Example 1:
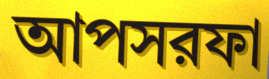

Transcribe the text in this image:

আপসরফা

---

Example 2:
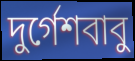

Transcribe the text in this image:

দুর্গেশবাবু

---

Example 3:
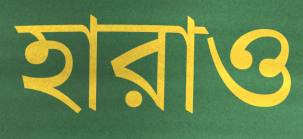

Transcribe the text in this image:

হারাও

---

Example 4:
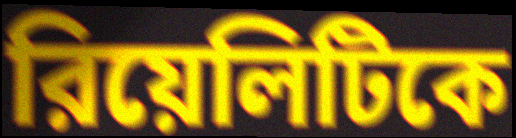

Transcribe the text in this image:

রিয়েলিটিকে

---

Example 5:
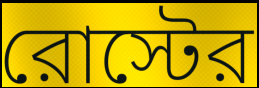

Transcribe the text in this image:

রোস্টের